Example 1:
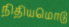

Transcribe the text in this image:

நிதியமொடு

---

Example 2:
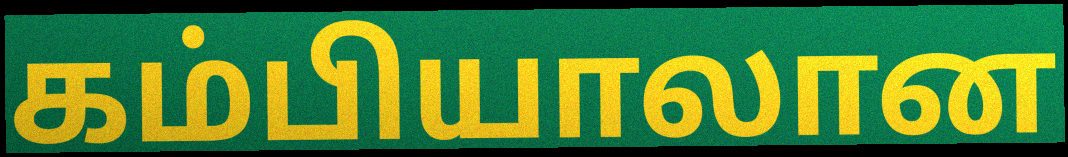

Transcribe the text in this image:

கம்பியாலான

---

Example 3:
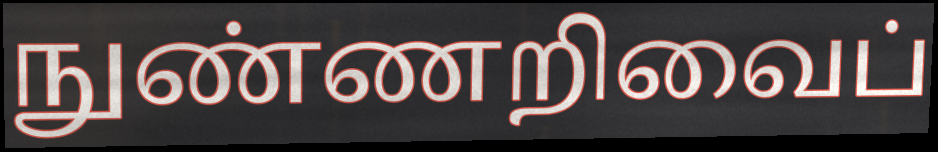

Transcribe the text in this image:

நுண்ணறிவைப்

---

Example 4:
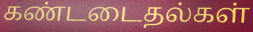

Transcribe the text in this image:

கண்டடைதல்கள்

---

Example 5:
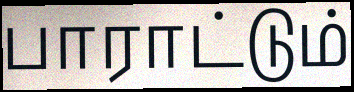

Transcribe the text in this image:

பாராட்டும்